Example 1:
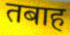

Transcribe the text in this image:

तबाह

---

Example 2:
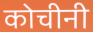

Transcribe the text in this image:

कोचीनी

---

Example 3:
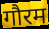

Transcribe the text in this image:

गौरम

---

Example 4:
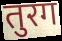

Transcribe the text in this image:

तुरग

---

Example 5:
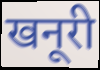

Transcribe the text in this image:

खनूरी